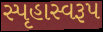
સ્પૃહાસ્વરૂપ